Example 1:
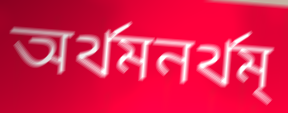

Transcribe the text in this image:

অর্থমনর্থম্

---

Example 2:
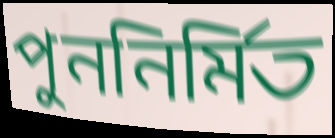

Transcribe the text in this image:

পুননির্মিত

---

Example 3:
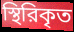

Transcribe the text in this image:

স্থিরিকৃত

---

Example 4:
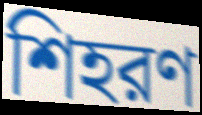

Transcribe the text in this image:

শিহরণ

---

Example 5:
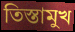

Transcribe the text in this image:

তিস্তামুখ